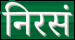
निरसं